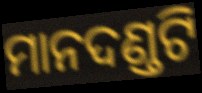
ମାନଦଣ୍ଡଟି